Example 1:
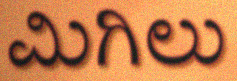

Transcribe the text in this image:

ಮಿಗಿಲು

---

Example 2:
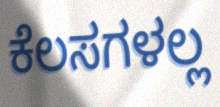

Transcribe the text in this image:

ಕೆಲಸಗಳಲ್ಲ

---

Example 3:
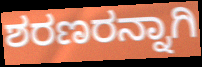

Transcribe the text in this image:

ಶರಣರನ್ನಾಗಿ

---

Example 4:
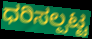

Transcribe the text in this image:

ಧರಿಸಲ್ಪಟ್ಟ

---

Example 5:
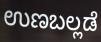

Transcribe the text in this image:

ಉಣಬಲ್ಲಡೆ